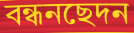
বন্ধনছেদন